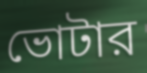
ভোটার